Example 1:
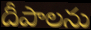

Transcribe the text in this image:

దీపాలను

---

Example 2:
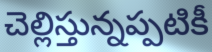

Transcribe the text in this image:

చెల్లిస్తున్నప్పటికీ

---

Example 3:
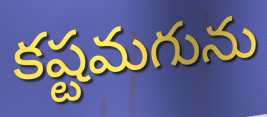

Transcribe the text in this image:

కష్టమగును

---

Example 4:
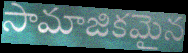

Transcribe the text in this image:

సామాజికమైన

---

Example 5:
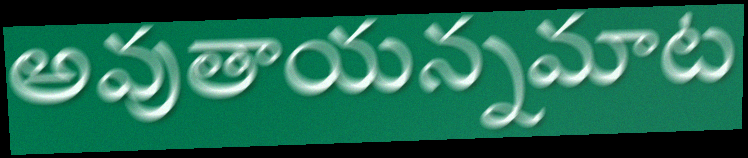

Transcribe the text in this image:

అవుతాయన్నమాట